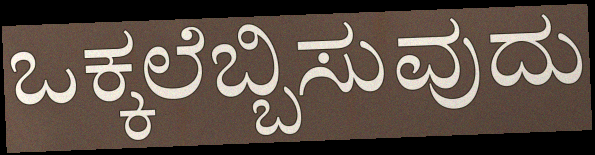
ಒಕ್ಕಲೆಬ್ಬಿಸುವುದು